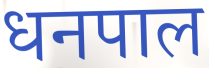
धनपाल